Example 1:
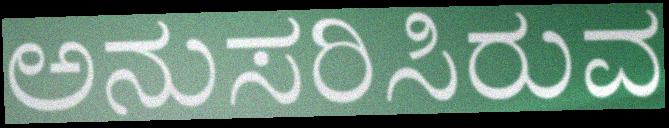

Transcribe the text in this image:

ಅನುಸರಿಸಿರುವ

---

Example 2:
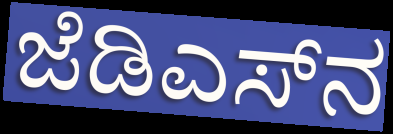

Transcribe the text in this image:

ಜೆಡಿಎಸ್‌ನ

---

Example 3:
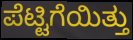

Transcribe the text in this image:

ಪೆಟ್ಟಿಗೆಯಿತ್ತು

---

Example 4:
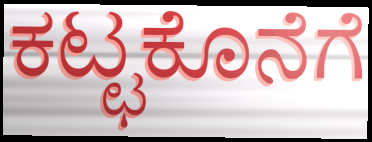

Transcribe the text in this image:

ಕಟ್ಟಕೊನೆಗೆ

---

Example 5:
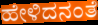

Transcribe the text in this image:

ಹೇಳಿದನಂತೆ